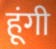
हूंगी